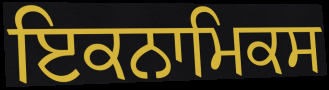
ਇਕਨਾਮਿਕਸ